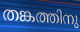
തങ്കത്തിനു